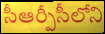
సీఆర్పీసీలోని